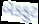
બૅકફુટ